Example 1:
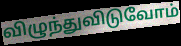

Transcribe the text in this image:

விழுந்துவிடுவோம்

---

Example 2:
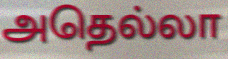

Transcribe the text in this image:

அதெல்லா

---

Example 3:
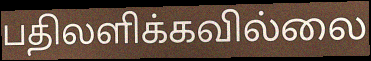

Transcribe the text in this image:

பதிலளிக்கவில்லை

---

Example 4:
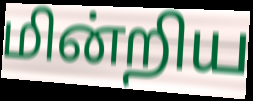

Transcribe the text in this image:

மின்றிய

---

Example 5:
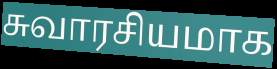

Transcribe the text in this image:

சுவாரசியமாக